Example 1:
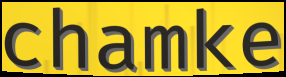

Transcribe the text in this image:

chamke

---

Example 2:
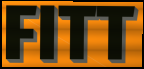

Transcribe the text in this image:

FITT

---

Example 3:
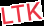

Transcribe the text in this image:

LTK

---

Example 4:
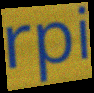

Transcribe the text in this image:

rpi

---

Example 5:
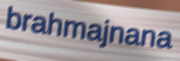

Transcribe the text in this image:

brahmajnana